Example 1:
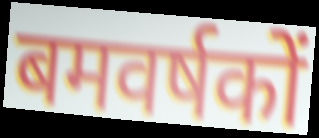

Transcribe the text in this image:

बमवर्षकों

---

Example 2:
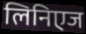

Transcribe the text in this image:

लिनिएज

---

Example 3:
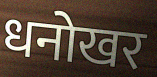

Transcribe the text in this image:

धनोखर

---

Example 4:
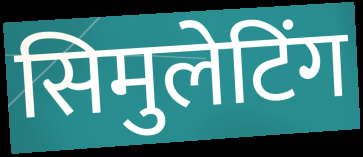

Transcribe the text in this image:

सिमुलेटिंग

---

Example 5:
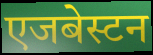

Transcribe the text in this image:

एजबेस्टन